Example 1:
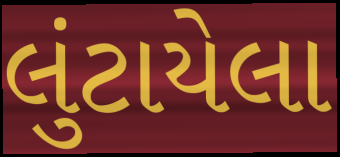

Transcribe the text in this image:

લુંટાયેલા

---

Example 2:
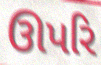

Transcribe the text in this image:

ઊપરિ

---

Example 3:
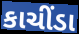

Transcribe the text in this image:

કાચીંડા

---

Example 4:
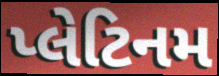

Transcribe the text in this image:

પ્લેટિનમ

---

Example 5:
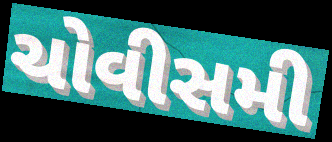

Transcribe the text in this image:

ચોવીસમી